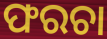
ଫରଚା